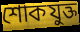
শোকযুক্ত